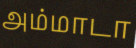
அம்மாடா